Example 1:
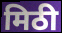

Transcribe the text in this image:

मिठी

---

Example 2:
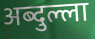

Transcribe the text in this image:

अब्दुल्ला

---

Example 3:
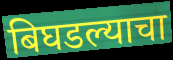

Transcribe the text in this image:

बिघडल्याचा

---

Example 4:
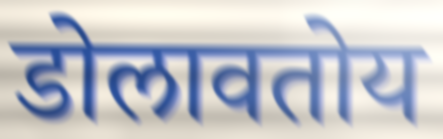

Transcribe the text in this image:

डोलावतोय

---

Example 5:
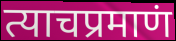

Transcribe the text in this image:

त्याचप्रमाणं